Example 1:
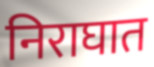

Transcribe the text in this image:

निराघात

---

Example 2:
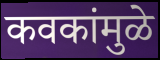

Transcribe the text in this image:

कवकांमुळे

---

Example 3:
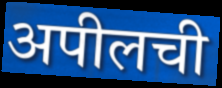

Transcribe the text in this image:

अपीलची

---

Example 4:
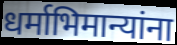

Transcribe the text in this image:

धर्माभिमान्यांना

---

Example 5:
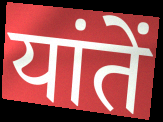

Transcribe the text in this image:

यांतें